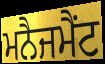
ਮਨੈਜਮੈਂਟ